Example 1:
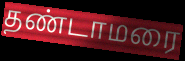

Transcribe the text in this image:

தண்டாமரை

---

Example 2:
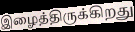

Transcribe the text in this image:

இழைத்திருக்கிறது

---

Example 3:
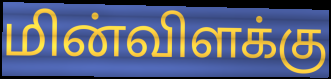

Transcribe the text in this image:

மின்விளக்கு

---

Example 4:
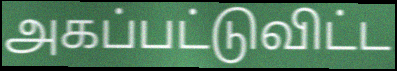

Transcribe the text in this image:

அகப்பட்டுவிட்ட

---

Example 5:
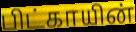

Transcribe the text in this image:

பிட்காயின்